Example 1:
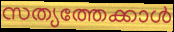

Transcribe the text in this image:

സത്യത്തേക്കാൾ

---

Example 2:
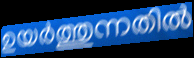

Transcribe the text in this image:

ഉയർത്തുന്നതിൽ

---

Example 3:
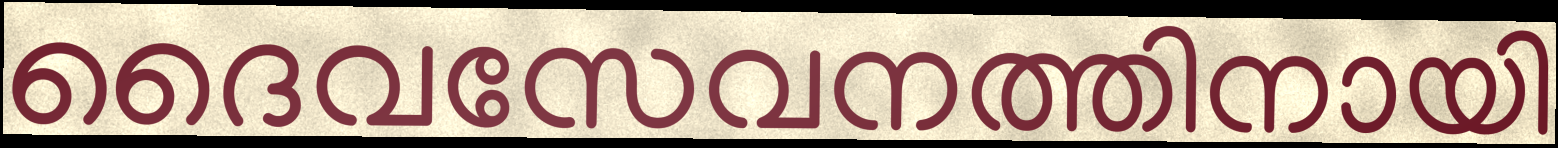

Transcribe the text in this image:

ദൈവസേവനത്തിനായി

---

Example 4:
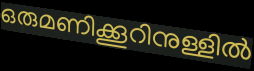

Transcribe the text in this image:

ഒരുമണിക്കൂറിനുള്ളിൽ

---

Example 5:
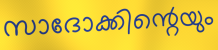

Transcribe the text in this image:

സാദോക്കിന്റെയും